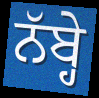
ਨੱਬ੍ਹੇ